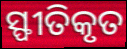
ସ୍ଫୀତିକୃତ